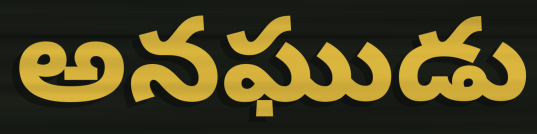
అనఘుడు